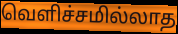
வெளிச்சமில்லாத